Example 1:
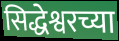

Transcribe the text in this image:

सिद्धेश्वरच्या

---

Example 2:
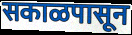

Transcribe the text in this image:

सकाळपासून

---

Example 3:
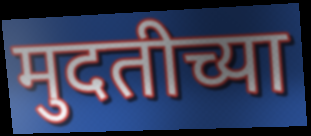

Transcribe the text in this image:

मुदतीच्या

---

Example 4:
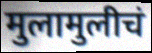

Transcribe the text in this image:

मुलामुलीचं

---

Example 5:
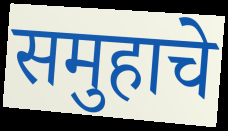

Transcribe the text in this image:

समुहाचे